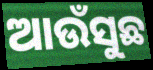
ଆଉଁସୁଛ